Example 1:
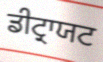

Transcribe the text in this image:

ਡੀਟ੍ਰਾਯਟ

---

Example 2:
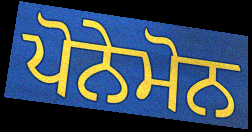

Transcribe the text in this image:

ਪੋਨੇਮੋਨ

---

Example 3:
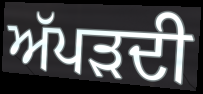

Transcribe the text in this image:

ਅੱਪੜਦੀ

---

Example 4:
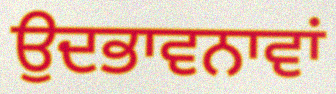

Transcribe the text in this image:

ਉਦਭਾਵਨਾਵਾਂ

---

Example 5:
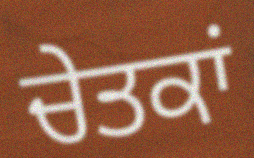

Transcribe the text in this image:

ਚੇਤਕਾਂ